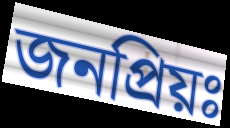
জনপ্রিয়ঃ